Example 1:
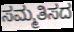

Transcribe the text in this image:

ಸಮ್ಮತಿಸದ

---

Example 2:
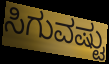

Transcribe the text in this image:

ಸಿಗುವಷ್ಟು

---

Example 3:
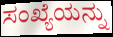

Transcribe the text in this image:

ಸಂಖ್ಯೆಯನ್ನು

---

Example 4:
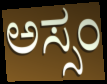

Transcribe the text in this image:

ಅಸ್ಸಂ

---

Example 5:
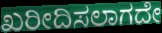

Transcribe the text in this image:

ಖರೀದಿಸಲಾಗದೇ